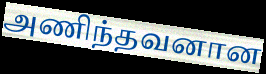
அணிந்தவனான